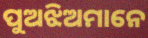
ପୁଅଝିଅମାନେ